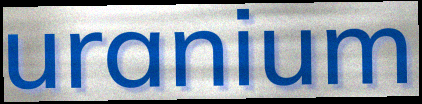
uranium